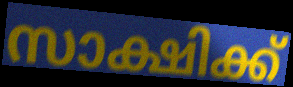
സാക്ഷിക്ക്